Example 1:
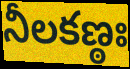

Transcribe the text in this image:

నీలకణ్ఠః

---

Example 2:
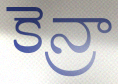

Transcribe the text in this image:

కెన్రా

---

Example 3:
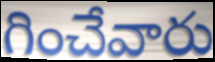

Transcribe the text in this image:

గించేవారు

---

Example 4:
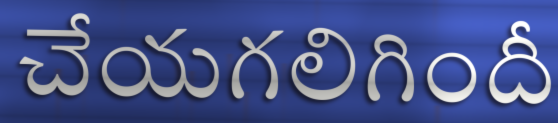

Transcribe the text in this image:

చేయగలిగిందీ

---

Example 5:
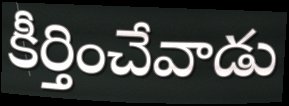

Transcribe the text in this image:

కీర్తించేవాడు